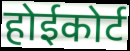
होईकोर्ट